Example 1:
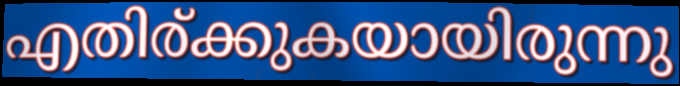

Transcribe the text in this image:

എതിര്ക്കുകയായിരുന്നു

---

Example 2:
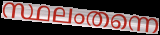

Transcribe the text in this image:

സ്ഥലംതന്നെ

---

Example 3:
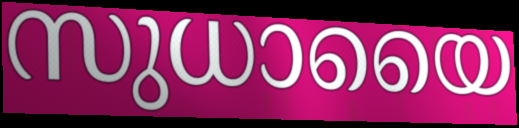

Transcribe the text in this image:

സുധായൈ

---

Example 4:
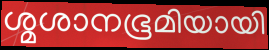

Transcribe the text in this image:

ശ്മശാനഭൂമിയായി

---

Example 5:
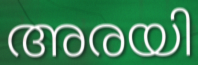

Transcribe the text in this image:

അരയി